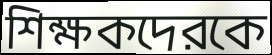
শিক্ষকদেরকে